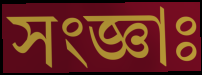
সংজ্ঞাঃ